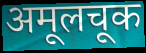
अमूलचूक